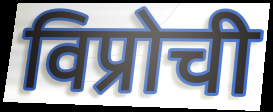
विप्रोची